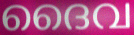
ദൈവ